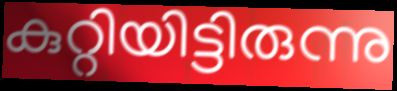
കുറ്റിയിട്ടിരുന്നു